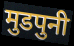
मुडपुनी